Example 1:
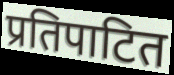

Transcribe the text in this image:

प्रतिपाटित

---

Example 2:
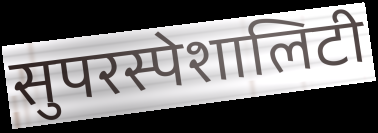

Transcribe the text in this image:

सुपरस्पेशालिटी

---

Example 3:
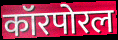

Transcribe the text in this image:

कॉरपोरल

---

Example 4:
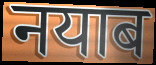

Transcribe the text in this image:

नयाब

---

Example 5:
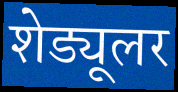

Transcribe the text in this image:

शेड्यूलर